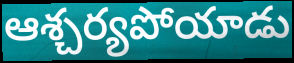
ఆశ్చర్యపోయాడు